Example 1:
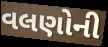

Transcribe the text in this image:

વલણોની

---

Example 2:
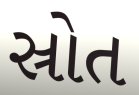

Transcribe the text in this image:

સ્રોત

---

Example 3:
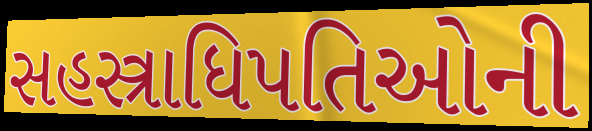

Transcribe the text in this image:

સહસ્ત્રાધિપતિઓની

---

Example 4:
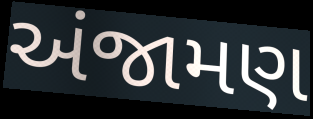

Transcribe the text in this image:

અંજામણ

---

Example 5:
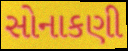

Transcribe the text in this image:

સોનાકણી